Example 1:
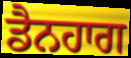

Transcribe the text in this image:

ਡੈਨਹਾਗ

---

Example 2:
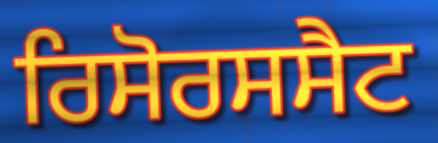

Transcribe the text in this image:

ਰਿਸੋਰਸਸੈਟ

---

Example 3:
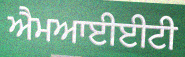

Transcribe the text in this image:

ਐਮਆਈਈਟੀ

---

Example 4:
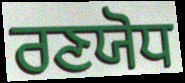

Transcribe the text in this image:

ਰਣਯੋਧ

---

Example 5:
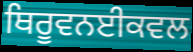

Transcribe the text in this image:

ਥਿਰੂਵਨਈਕਵਲ